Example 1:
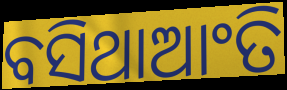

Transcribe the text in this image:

ବସିଥାଆଂତି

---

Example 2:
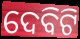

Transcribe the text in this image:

ଦେବିଟି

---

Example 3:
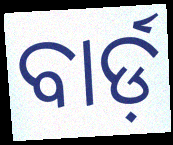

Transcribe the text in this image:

ବାର୍ଡ଼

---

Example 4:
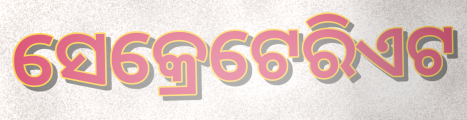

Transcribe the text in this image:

ସେକ୍ରେଟେରିଏଟ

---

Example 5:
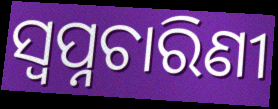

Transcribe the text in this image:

ସ୍ୱପ୍ନଚାରିଣୀ